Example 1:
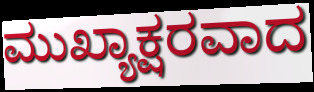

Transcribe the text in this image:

ಮುಖ್ಯಾಕ್ಷರವಾದ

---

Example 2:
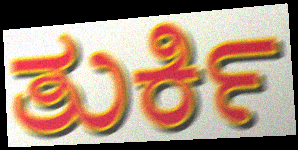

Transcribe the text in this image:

ತುರ್ಕಿ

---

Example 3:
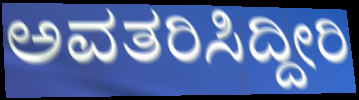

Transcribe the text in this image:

ಅವತರಿಸಿದ್ದೀರಿ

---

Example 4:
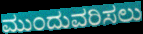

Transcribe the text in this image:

ಮುಂದುವರಿಸಲು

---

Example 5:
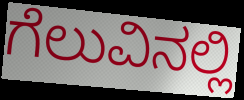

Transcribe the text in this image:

ಗೆಲುವಿನಲ್ಲಿ